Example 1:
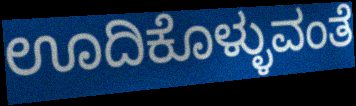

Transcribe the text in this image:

ಊದಿಕೊಳ್ಳುವಂತೆ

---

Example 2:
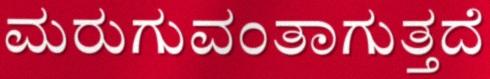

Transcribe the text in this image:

ಮರುಗುವಂತಾಗುತ್ತದೆ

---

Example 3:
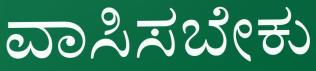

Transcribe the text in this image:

ವಾಸಿಸಬೇಕು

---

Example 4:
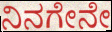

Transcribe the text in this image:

ನಿನಗೇನೇ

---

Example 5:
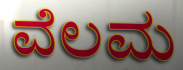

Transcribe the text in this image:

ವೆಲಮ